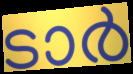
ടാർ